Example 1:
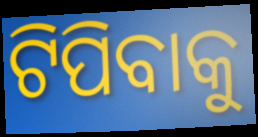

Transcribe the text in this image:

ଟିପିବାକୁ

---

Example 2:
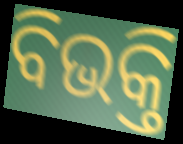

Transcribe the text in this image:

ବିଭକ୍ତି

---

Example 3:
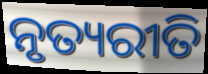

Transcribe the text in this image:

ନୃତ୍ୟରୀତି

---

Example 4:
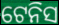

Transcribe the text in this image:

ଟେନିସ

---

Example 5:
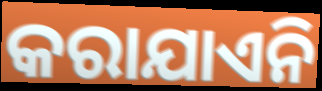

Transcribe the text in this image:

କରାଯାଏନି